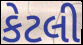
કેટલી